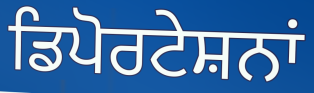
ਡਿਪੋਰਟੇਸ਼ਨਾਂ